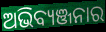
ଅଭିବ୍ୟଞ୍ଜନାର